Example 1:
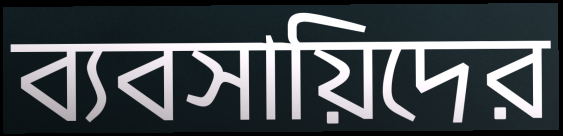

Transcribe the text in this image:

ব্যবসায়িদের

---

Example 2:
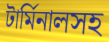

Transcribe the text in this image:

টার্মিনালসহ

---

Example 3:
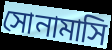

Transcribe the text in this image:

সোনামাসি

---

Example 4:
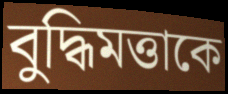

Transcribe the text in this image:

বুদ্ধিমত্তাকে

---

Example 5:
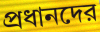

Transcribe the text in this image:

প্রধানদের